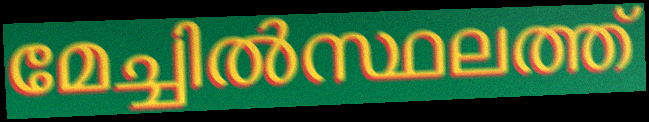
മേച്ചിൽസ്ഥലത്ത്